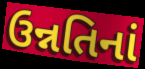
ઉન્નતિનાં